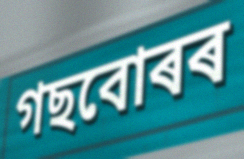
গছবোৰৰ